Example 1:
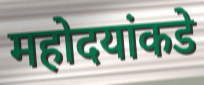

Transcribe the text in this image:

महोदयांकडे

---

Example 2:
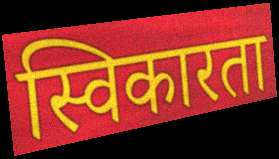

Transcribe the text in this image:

स्विकारता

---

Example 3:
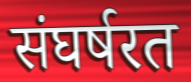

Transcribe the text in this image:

संघर्षरत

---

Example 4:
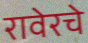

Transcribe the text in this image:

रावेरचे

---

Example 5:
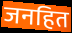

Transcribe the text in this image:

जनहित